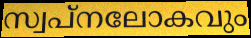
സ്വപ്നലോകവും